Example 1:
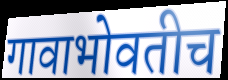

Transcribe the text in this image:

गावाभोवतीच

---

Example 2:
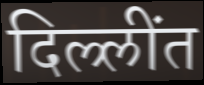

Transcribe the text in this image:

दिल्लींत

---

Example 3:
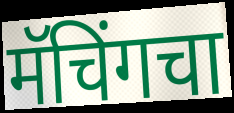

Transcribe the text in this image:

मॅचिंगचा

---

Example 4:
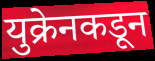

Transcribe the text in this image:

युक्रेनकडून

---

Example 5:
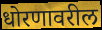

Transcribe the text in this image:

धोरणावरील